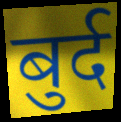
बुर्द